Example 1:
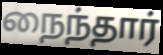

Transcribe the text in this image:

நைந்தார்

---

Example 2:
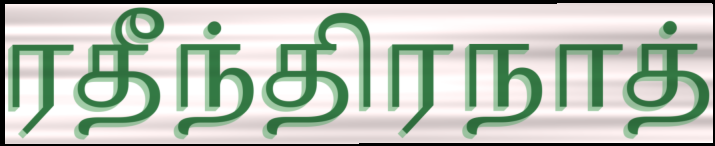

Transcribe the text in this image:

ரதீந்திரநாத்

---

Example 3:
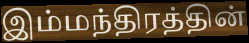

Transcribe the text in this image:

இம்மந்திரத்தின்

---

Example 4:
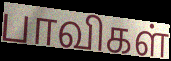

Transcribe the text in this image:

பாவிகள்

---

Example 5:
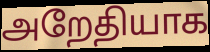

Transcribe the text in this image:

அறேதியாக